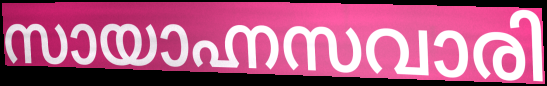
സായാഹ്നസവാരി